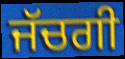
ਜੱਚਗੀ